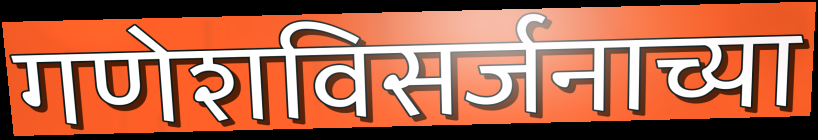
गणेशविसर्जनाच्या